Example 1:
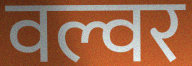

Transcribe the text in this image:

वल्वर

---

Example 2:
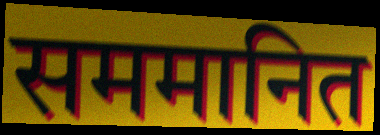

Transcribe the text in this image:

सममानित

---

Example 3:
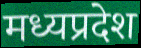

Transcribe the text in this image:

मध्यप्रदेश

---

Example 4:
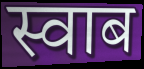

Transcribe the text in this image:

स्वाब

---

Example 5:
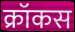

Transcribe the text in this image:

क्रॉकस